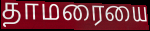
தாமரையை